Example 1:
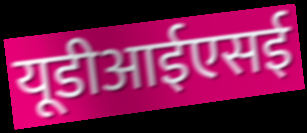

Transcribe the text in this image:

यूडीआईएसई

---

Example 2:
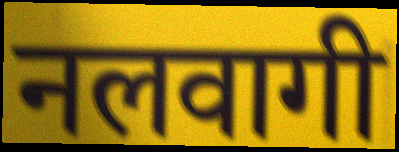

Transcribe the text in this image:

नलवागी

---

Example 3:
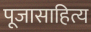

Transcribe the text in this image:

पूजासाहित्य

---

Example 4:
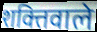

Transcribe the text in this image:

शक्तिवाले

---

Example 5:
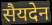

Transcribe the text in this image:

सैयदेन